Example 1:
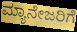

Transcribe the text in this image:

ಮ್ಯಾನೇಜರಿಗೆ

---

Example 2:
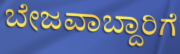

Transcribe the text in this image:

ಬೇಜವಾಬ್ದಾರಿಗೆ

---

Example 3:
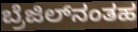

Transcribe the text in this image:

ಬ್ರೆಜಿಲ್‌ನಂತಹ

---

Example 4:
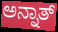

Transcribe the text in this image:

ಅನ್ನಾತ್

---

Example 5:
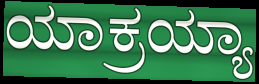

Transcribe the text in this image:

ಯಾಕ್ರಯ್ಯಾ